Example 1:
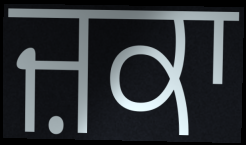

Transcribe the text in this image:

ਜ਼ਕਾ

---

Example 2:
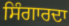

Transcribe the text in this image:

ਸਿੰਗਾਰਦਾ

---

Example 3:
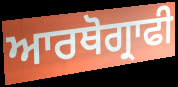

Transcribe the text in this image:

ਆਰਥੋਗ੍ਰਾਫੀ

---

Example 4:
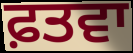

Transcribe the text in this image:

ਫ਼ਤਵਾ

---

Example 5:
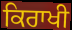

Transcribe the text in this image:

ਕਿਰਾਖੀ